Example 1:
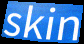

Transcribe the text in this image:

skin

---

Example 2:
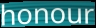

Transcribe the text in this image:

honour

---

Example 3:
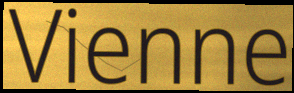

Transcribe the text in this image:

Vienne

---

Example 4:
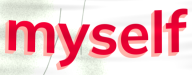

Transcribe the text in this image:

myself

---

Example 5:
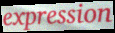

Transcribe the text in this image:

expression